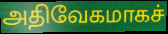
அதிவேகமாகச்